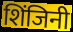
शिंजिनी